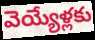
వెయ్యేళ్లకు